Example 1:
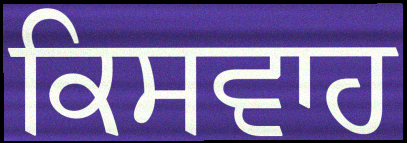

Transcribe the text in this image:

ਕਿਸਵਾਹ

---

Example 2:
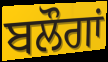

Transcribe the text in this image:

ਬਲੌਗਾਂ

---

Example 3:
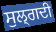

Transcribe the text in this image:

ਸੁਲ੍ਗਦੀ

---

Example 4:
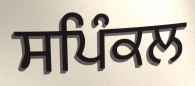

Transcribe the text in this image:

ਸਪਿੰਕਲ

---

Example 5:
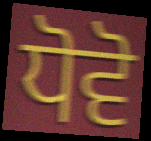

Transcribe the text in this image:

ਧੋਵੋ